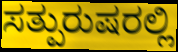
ಸತ್ಪುರುಷರಲ್ಲಿ